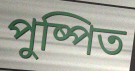
পুষ্পিত